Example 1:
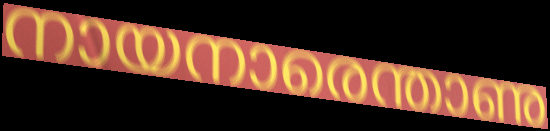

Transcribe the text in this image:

നായനാരെന്താണു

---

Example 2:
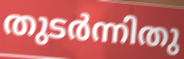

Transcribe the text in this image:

തുടർന്നിതു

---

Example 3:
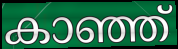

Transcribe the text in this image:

കാഞ്ഞ്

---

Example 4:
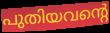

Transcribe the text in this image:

പുതിയവന്റെ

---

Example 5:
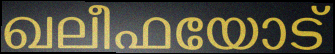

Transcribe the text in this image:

ഖലീഫയോട്